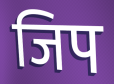
जिप